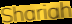
Shariah